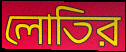
লোতির